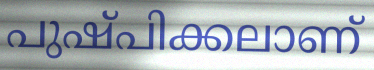
പുഷ്പിക്കലാണ്